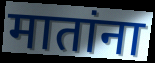
मातांना